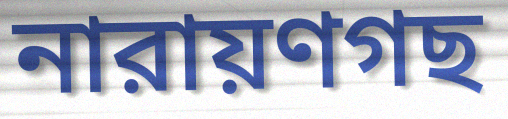
নারায়ণগছ